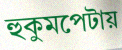
হুকুমপেটায়